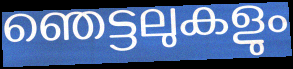
ഞെട്ടലുകളും